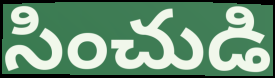
సించుడి